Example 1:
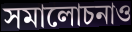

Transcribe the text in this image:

সমালোচনাও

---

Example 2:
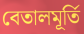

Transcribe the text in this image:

বেতালমূর্তি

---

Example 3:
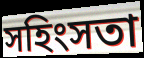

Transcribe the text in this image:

সহিংসতা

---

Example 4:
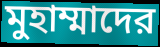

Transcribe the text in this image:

মুহাম্মাদের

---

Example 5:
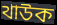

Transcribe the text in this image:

থাউক